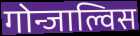
गोन्जाल्विस